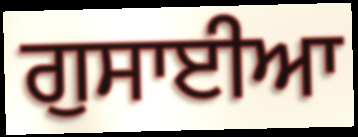
ਗੁਸਾਈਆ